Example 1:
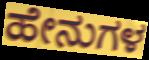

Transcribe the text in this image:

ಹೇನುಗಳ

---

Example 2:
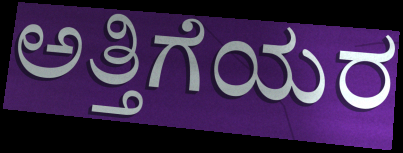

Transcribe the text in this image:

ಅತ್ತಿಗೆಯರ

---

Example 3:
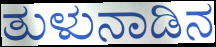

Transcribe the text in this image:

ತುಳುನಾಡಿನ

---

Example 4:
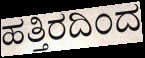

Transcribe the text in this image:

ಹತ್ತಿರದಿಂದ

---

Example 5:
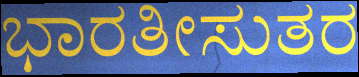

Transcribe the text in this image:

ಭಾರತೀಸುತರ